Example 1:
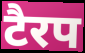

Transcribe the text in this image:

टैरप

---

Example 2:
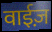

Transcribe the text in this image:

वाईज़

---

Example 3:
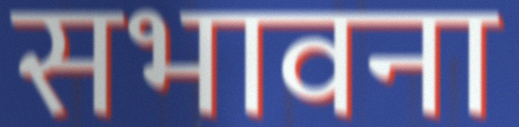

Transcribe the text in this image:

सभावना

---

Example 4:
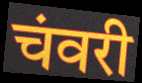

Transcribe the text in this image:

चंवरी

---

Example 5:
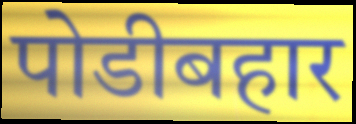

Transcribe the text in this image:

पोडीबहार